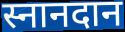
स्नानदान